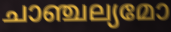
ചാഞ്ചല്യമോ